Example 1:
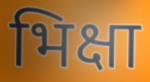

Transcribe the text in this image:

भिक्षा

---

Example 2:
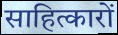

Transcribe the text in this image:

साहित्कारों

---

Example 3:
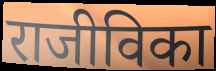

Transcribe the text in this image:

राजीविका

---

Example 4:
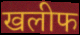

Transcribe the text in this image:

खलीफ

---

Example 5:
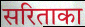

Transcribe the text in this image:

सरिताका